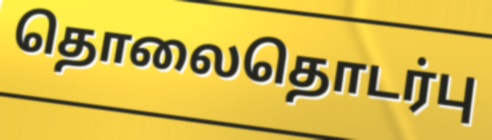
தொலைதொடர்பு